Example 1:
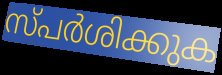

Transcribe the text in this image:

സ്പർശിക്കുക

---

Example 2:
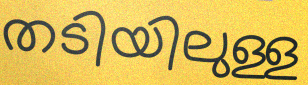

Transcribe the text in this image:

തടിയിലുള്ള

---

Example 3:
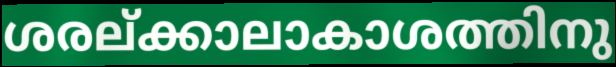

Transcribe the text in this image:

ശരല്ക്കാലാകാശത്തിനു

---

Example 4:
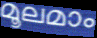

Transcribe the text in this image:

മൂലമാം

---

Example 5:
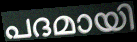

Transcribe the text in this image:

പദമായി